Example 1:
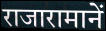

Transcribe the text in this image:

राजारामानें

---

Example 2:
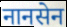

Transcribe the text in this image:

नानसेन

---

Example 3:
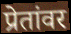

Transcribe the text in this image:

प्रेतांवर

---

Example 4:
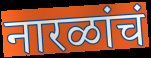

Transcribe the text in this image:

नारळांचं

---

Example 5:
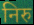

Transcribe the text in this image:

निरु